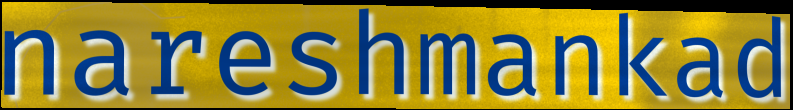
nareshmankad